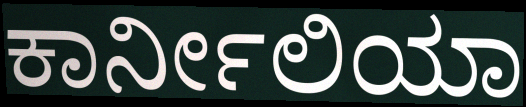
ಕಾರ್ನೀಲಿಯಾ